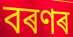
বৰণৰ